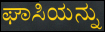
ಘಾಸಿಯನ್ನು